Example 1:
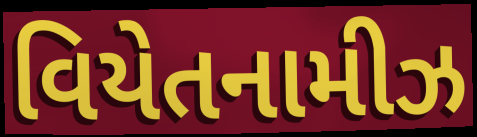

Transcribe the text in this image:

વિયેતનામીઝ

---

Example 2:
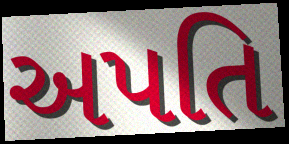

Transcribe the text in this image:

અપતિ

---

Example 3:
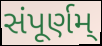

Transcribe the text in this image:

સંપૂર્ણમ્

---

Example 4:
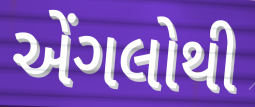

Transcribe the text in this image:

એંગલોથી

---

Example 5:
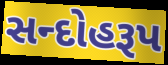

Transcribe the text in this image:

સન્દોહરૂપ